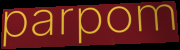
parpom